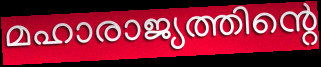
മഹാരാജ്യത്തിന്റെ